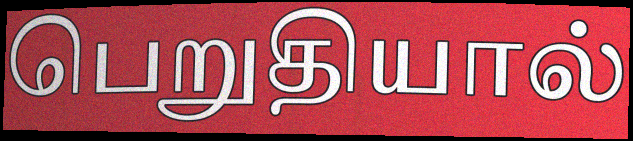
பெறுதியால்